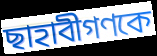
ছাহাবীগণকে